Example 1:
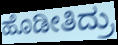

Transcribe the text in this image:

ಹೊಡೀತಿದ್ರು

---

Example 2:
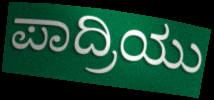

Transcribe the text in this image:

ಪಾದ್ರಿಯು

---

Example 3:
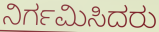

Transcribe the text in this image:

ನಿರ್ಗಮಿಸಿದರು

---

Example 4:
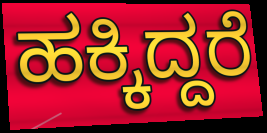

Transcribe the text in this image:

ಹಕ್ಕಿದ್ದರೆ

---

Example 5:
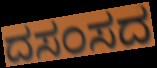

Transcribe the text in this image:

ದಸಂಸದ